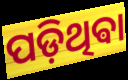
ପଡ଼ିଥିଵା